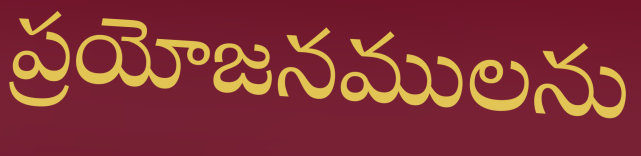
ప్రయోజనములను